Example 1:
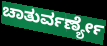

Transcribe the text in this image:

ಚಾತುರ್ವರ್ಣ್ಯೇ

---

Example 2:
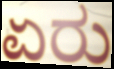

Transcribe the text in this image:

ಏರು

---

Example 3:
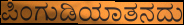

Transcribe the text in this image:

ಪಿಂಗುಡಿಯಾತನದು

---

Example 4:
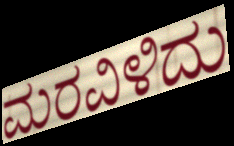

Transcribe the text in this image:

ಮರವಿಳಿದು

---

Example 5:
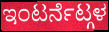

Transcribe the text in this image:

ಇಂಟರ್ನೆಟ್ಗಳ